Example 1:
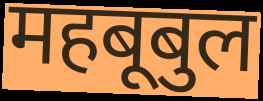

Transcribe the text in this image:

महबूबुल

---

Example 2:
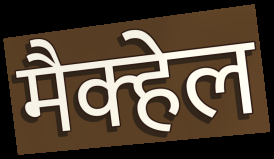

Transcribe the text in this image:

मैक्हेल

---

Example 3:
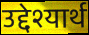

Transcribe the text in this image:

उद्देश्यार्थ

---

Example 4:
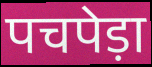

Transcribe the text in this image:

पचपेड़ा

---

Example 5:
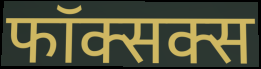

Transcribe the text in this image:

फॉक्सक्स